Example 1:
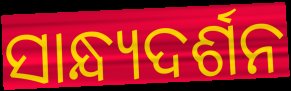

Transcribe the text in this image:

ସାନ୍ଧ୍ୟଦର୍ଶନ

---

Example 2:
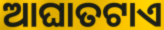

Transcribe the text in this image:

ଆଘାତଟାଏ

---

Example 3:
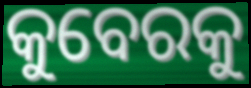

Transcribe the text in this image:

କୁବେରକୁ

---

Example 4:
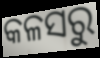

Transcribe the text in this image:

କଳସରୁ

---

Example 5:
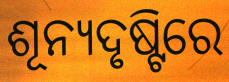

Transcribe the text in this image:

ଶୂନ୍ୟଦୃଷ୍ଟିରେ